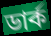
ডাৰ্ক